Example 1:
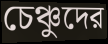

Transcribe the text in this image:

চেঞ্চুদের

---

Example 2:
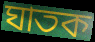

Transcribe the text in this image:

ঘাতক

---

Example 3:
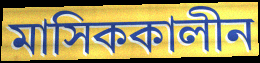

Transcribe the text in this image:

মাসিককালীন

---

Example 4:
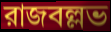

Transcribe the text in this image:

রাজবল্লভ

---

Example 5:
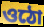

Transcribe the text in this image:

ওঠো